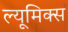
ल्यूमिक्स